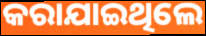
କରାଯାଇଥିଲେ